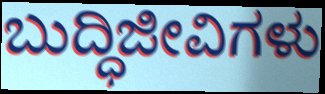
ಬುದ್ಧಿಜೀವಿಗಳು